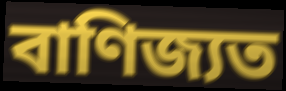
বাণিজ্যত